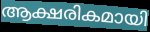
ആക്ഷരികമായി